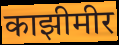
काझीमीर